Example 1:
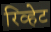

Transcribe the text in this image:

रिव्हेट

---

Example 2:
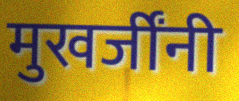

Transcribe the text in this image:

मुखर्जींनी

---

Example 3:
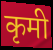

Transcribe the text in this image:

कृमी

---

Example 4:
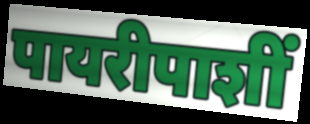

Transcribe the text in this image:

पायरीपाशीं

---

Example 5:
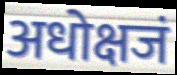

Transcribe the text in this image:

अधोक्षजं